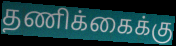
தணிக்கைக்கு